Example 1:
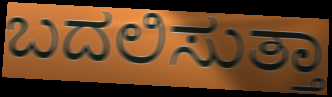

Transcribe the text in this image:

ಬದಲಿಸುತ್ತಾ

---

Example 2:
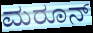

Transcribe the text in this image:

ಮರೂನ್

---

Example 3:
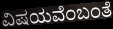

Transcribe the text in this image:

ವಿಷಯವೆಂಬಂತೆ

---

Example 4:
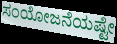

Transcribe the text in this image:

ಸಂಯೋಜನೆಯಷ್ಟೇ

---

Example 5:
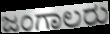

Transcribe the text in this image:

ಜಂಗಾಲರು